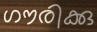
ഗൗരിക്കു